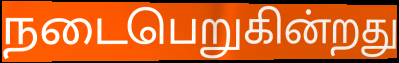
நடைபெறுகின்றது